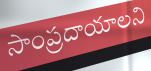
సాంప్రదాయాలని